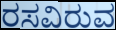
ರಸವಿರುವ